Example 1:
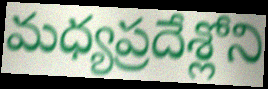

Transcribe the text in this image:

మధ్యప్రదేశ్లోని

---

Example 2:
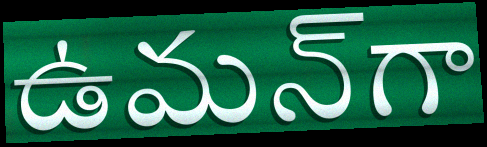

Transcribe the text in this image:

ఉమన్‌గా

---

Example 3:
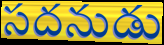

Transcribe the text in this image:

సదనుడు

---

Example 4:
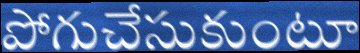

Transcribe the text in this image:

పోగుచేసుకుంటూ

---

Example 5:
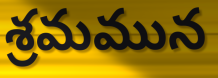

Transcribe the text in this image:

శ్రమమున